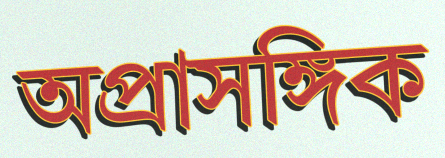
অপ্রাসঙ্গিক